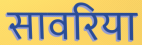
सावरिया